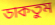
ডাকতুম